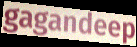
gagandeep